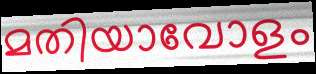
മതിയാവോളം